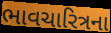
ભાવચારિત્રના